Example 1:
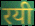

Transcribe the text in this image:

रयी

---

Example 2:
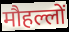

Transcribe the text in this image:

मौहल्लों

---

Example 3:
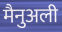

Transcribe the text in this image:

मैनुअली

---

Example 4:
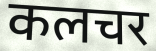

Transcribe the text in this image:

कलचर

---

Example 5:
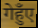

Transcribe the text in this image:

गेहुँए